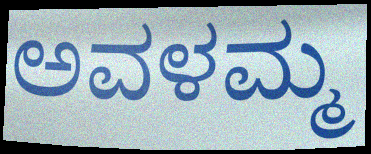
ಅವಳಮ್ಮ